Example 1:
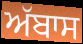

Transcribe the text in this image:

ਅੱਬਾਸ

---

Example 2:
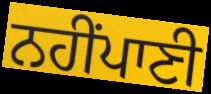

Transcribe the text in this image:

ਨਹੀਂਪਾਣੀ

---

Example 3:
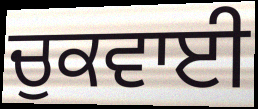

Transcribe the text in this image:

ਚੁਕਵਾਈ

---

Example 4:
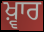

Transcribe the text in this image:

ਖ਼੍ਵਾਰ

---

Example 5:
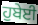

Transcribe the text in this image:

ਹੁਬੇਈ